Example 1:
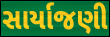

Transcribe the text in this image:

સાર્યાજણી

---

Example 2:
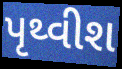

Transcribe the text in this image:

પૃથ્વીશ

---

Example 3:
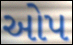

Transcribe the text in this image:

ઓપ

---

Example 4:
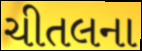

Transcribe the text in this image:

ચીતલના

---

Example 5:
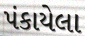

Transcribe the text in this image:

પંકાયેલા